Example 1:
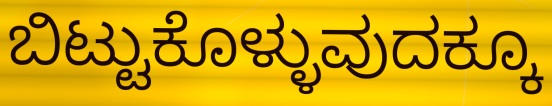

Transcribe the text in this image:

ಬಿಟ್ಟುಕೊಳ್ಳುವುದಕ್ಕೂ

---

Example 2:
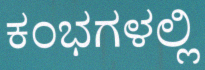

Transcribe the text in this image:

ಕಂಭಗಳಲ್ಲಿ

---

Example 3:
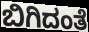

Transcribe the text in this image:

ಬಿಗಿದಂತೆ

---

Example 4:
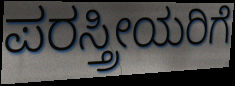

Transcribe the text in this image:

ಪರಸ್ತ್ರೀಯರಿಗೆ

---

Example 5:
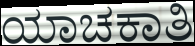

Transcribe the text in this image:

ಯಾಚಕಾತಿ